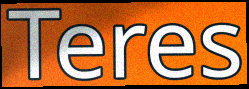
Teres